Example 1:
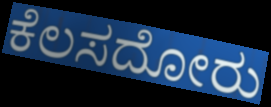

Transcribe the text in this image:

ಕೆಲಸದೋರು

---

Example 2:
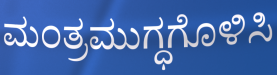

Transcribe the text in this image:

ಮಂತ್ರಮುಗ್ಧಗೊಳಿಸಿ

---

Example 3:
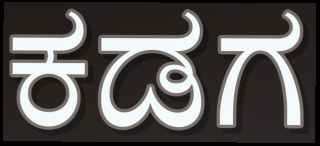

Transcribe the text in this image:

ಕಡಗ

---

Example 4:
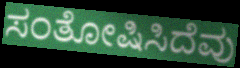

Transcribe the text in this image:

ಸಂತೋಷಿಸಿದೆವು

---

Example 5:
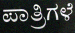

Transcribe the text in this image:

ಪಾತ್ರಿಗಳೆ